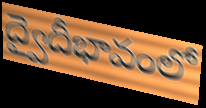
ద్వైదీభావంలో